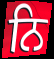
ਨਿ